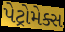
પેટ્રોમેક્સ